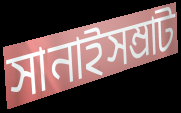
সানাইসম্রাট